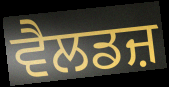
ਵੈਲਡਜ਼